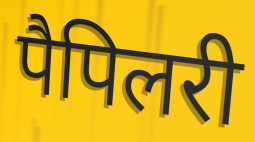
पैपिलरी